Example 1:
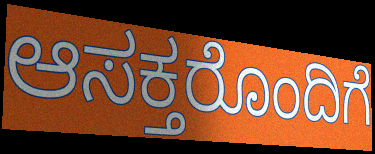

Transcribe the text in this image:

ಆಸಕ್ತರೊಂದಿಗೆ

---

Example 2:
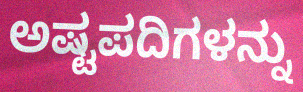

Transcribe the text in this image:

ಅಷ್ಟಪದಿಗಳನ್ನು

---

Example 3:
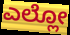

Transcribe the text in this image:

ಎಲ್ಲೋ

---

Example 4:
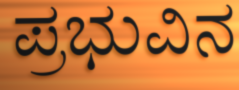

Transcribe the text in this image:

ಪ್ರಭುವಿನ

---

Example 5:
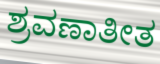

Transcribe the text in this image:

ಶ್ರವಣಾತೀತ